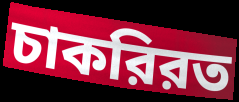
চাকরিরত